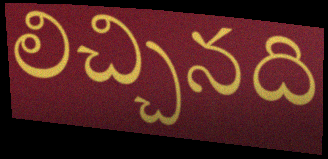
లిచ్చినది